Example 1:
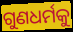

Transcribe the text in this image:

ଗୁଣଧର୍ମକୁ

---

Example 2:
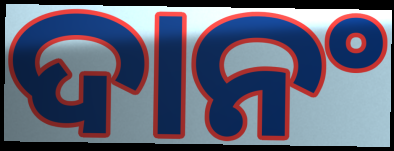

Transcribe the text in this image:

ଦାନଂ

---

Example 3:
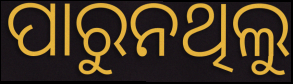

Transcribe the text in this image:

ପାରୁନଥିଲୁ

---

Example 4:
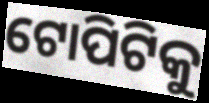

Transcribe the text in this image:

ଟୋପିଟିକୁ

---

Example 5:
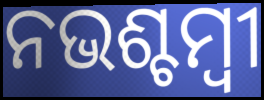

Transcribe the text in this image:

ନଭଶ୍ଚମ୍ବୀ